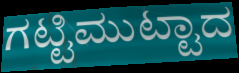
ಗಟ್ಟಿಮುಟ್ಟಾದ